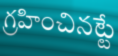
గ్రహించినట్టే